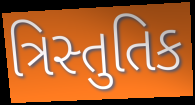
ત્રિસ્તુતિક